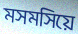
মসমসিয়ে